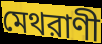
মেথরাণী